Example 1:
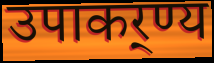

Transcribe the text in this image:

उपाकर्ण्य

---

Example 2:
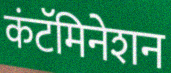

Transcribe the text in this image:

कंटॅमिनेशन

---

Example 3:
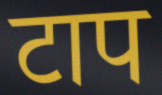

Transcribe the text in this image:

टाप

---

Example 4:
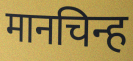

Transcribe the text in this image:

मानचिन्ह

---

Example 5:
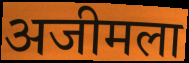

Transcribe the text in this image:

अजीमला